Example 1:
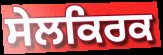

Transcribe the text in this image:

ਸੇਲਕਿਰਕ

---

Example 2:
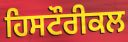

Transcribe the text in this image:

ਹਿਸਟੌਰੀਕਲ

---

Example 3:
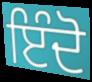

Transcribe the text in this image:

ਇੰਦੋ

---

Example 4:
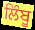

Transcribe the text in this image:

ਲਿੰਬੂ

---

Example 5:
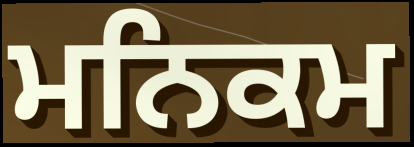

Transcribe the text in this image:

ਮਨਿਕਮ